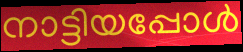
നാട്ടിയപ്പോൾ